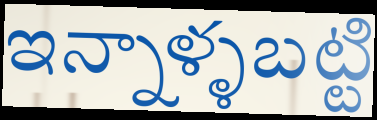
ఇన్నాళ్ళబట్టి